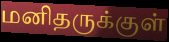
மனிதருக்குள்